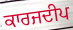
ਕਾਰਜਦੀਪ